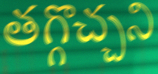
తగ్గొచ్చని